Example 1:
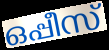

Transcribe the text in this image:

ഒപ്പീസ്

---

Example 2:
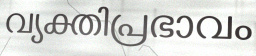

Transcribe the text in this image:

വ്യക്തിപ്രഭാവം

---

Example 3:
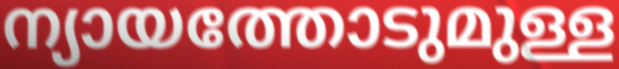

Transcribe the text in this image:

ന്യായത്തോടുമുള്ള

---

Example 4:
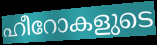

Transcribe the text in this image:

ഹീറോകളുടെ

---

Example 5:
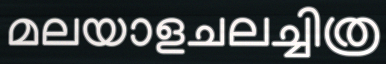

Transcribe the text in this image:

മലയാളചലച്ചിത്ര